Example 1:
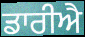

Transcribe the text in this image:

ਡਾਰੀਐ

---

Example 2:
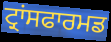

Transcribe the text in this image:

ਟ੍ਰਾਂਸਫਾਰਮਡ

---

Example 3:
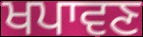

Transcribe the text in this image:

ਖਪਾਵਣ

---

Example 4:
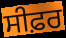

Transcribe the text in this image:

ਸੀਫ਼ਰ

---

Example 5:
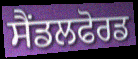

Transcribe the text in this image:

ਸੈਂਡਲਫੋਰਡ